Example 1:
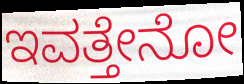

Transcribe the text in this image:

ಇವತ್ತೇನೋ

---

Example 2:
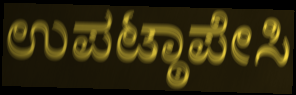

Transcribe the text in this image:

ಉಪಟ್ಠಾಪೇಸಿ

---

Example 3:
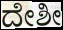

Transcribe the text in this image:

ದೇಶೀ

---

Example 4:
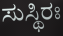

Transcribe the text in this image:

ಸುಸ್ಥಿರಃ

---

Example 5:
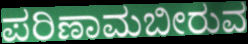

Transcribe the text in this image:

ಪರಿಣಾಮಬೀರುವ